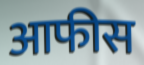
आफीस